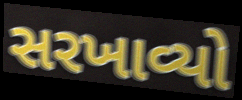
સરખાવ્યો